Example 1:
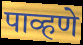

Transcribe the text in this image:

पाव्हणे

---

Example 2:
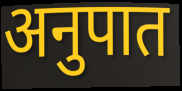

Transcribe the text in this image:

अनुपात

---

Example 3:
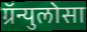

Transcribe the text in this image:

ग्रॅन्युलोसा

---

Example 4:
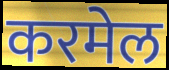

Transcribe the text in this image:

करमेल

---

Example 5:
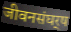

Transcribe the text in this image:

जीवनसंघर्ष